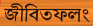
জীবিতফলং